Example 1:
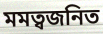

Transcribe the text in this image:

মমত্বজনিত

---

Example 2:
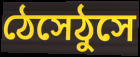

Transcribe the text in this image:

ঠেসেঠুসে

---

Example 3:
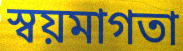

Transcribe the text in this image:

স্বয়মাগতা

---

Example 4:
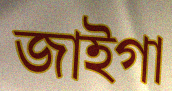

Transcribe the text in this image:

জাইগা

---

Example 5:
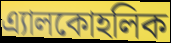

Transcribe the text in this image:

এ্যালকোহলিক